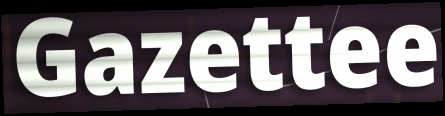
Gazettee